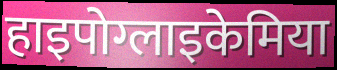
हाइपोग्लाइकेमिया